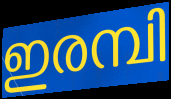
ഇരമ്പി